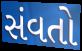
સંવતો